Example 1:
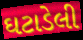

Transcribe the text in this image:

ઘટાડેલી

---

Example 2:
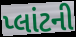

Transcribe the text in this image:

પ્લાંટની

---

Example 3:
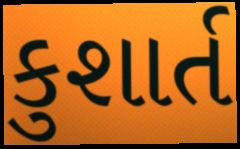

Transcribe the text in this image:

કુશાર્ત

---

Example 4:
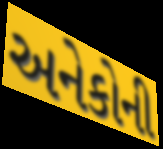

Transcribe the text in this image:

અનેકોની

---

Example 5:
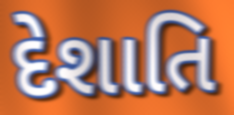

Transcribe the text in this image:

દેશાતિ